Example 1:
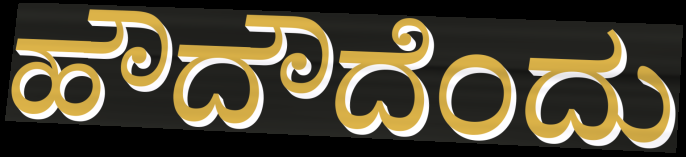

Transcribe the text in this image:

ಹೌದೌದೆಂದು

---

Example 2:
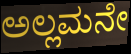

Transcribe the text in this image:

ಅಲ್ಲಮನೇ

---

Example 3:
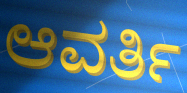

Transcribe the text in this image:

ಆವರ್ತಿ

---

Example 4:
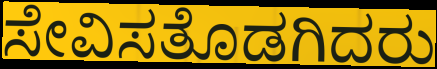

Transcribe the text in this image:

ಸೇವಿಸತೊಡಗಿದರು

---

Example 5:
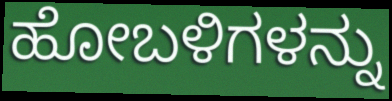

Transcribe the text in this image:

ಹೋಬಳಿಗಳನ್ನು